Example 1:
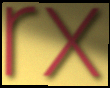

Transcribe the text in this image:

rx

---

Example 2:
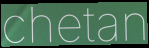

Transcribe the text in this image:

chetan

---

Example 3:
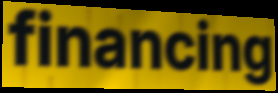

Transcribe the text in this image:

financing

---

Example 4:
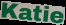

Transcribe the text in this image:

Katie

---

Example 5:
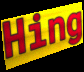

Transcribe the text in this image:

Hing